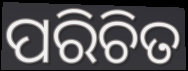
ପରିଚିତ